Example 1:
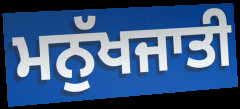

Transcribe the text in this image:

ਮਨੁੱਖਜਾਤੀ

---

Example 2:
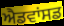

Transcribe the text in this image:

ਐਡਵਾਂਸਡ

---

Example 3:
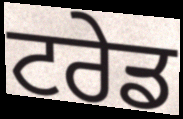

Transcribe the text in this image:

ਟਰੇਡ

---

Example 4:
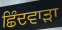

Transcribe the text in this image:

ਛਿੰਦਵਾੜਾ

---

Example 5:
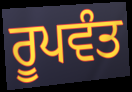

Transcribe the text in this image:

ਰੂਪਵੰਤ